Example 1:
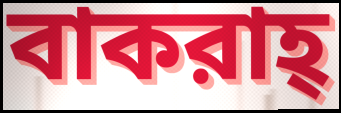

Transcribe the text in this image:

বাকরাহ্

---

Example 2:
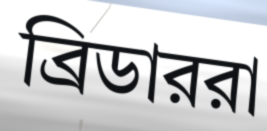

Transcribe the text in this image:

ব্রিডাররা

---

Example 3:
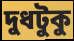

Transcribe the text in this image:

দুধটুকু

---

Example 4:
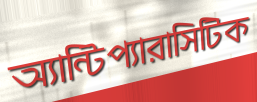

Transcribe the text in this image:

অ্যান্টিপ্যারাসিটিক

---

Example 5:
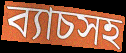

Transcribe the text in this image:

ব্যাচসহ